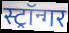
स्ट्रॉन्गर